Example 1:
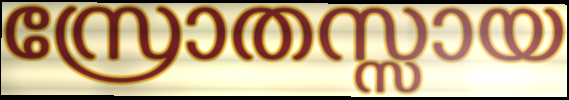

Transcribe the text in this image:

സ്രോതസ്സായ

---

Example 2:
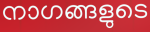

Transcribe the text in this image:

നാഗങ്ങളുടെ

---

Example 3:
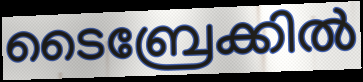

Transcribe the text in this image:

ടൈബ്രേക്കിൽ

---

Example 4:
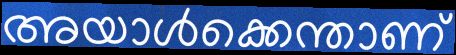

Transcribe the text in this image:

അയാൾക്കെന്താണ്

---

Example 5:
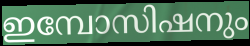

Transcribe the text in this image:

ഇമ്പോസിഷനും